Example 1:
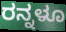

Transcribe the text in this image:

ರನ್ನಳೂ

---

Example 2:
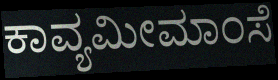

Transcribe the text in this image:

ಕಾವ್ಯಮೀಮಾಂಸೆ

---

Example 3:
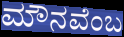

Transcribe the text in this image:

ಮೌನವೆಂಬ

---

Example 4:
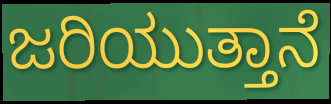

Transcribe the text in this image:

ಜರಿಯುತ್ತಾನೆ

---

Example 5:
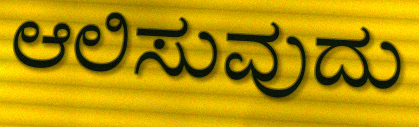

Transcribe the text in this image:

ಆಲಿಸುವುದು